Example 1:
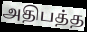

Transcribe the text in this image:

அதிபத்த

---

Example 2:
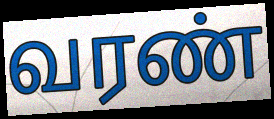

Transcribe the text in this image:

வரண்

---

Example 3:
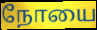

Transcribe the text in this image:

நோயை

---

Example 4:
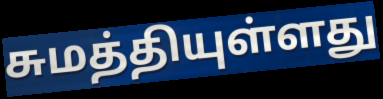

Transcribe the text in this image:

சுமத்தியுள்ளது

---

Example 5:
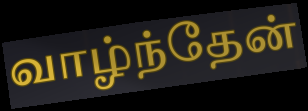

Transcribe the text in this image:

வாழ்ந்தேன்